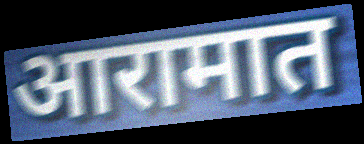
आरामात